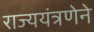
राज्ययंत्रणेने